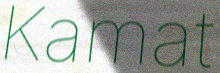
Kamat